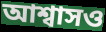
আশ্বাসও